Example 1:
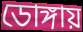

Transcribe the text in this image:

ডোঙ্গায়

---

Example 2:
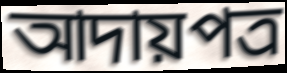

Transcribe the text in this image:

আদায়পত্র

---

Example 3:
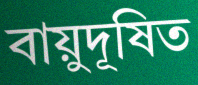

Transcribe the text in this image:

বায়ুদূষিত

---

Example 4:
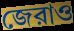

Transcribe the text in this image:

জেরাও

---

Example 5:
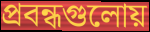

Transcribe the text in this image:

প্রবন্ধগুলোয়